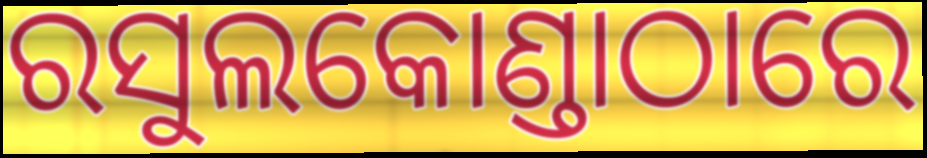
ରସୁଲକୋଣ୍ଡାଠାରେ